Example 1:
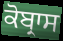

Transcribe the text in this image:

ਕੋਬ੍ਰਾਸ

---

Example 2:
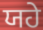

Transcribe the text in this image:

ਯਹੇ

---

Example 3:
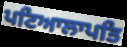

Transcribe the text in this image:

ਪਟਿਆਲਾਪਤਿ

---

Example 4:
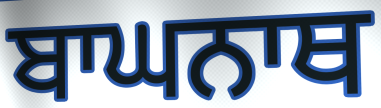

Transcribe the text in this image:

ਬਾਘਨਾਥ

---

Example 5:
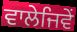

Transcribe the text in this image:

ਵਾਲੇਜਿਵੇਂ